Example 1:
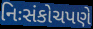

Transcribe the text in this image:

નિઃસંકોચપણે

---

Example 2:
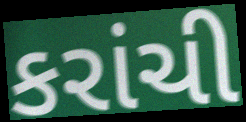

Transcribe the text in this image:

કરાંચી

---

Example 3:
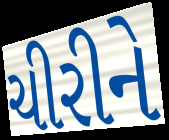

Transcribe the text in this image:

ચીરીને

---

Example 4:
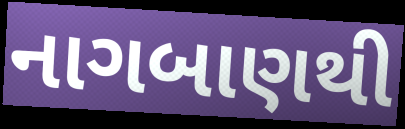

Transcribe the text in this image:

નાગબાણથી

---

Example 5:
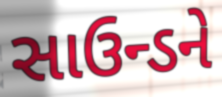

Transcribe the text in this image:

સાઉન્ડને